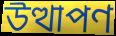
উত্থাপণ